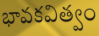
భావకవిత్వం